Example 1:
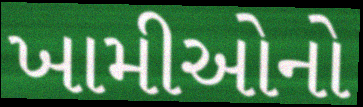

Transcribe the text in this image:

ખામીઓનો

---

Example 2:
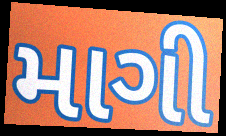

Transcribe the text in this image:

માગી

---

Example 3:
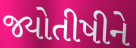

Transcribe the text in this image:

જ્યોતીષીને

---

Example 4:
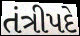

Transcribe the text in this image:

તંત્રીપદે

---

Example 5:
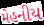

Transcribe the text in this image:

મેહનીય